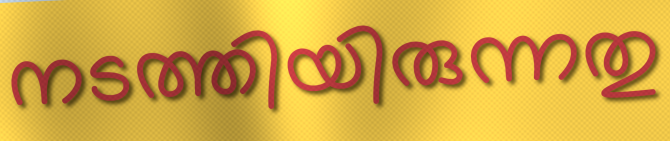
നടത്തിയിരുന്നതു